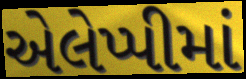
એલેપ્પીમાં